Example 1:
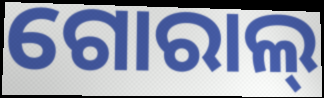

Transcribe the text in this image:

ଗୋରାଲ୍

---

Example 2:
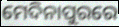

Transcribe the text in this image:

ମେଦିନାପୁରରେ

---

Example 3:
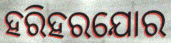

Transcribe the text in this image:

ହରିହରଯୋର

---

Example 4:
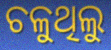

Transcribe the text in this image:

ଚଳୁଥିଲୁ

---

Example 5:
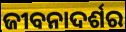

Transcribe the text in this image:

ଜୀବନାଦର୍ଶର